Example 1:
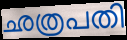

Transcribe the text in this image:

ഛത്രപതി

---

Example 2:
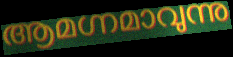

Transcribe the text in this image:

ആമഗ്നമാവുന്നു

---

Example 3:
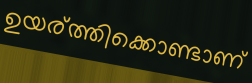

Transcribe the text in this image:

ഉയര്ത്തിക്കൊണ്ടാണ്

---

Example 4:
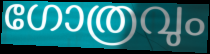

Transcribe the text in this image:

ഗോത്രവും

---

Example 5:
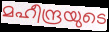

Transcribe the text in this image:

മഹീന്ദ്രയുടെ